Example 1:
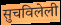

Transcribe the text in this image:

सुचविलेली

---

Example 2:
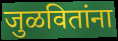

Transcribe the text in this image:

जुळवितांना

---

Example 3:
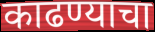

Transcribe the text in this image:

काढण्याचा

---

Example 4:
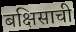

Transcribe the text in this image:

बक्षिसाची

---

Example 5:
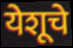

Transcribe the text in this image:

येशूचे